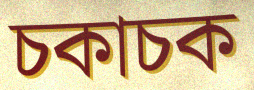
চকাচক